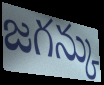
జగన్కు